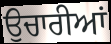
ਉਚਾਰੀਆਂ